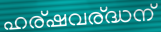
ഹര്ഷവര്ദ്ധന്